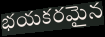
భయకరమైన